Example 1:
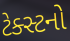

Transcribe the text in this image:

ટેક્સ્ટનો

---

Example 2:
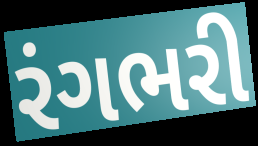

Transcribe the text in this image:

રંગભરી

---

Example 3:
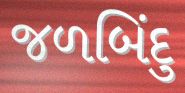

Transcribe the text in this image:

જળબિંદુ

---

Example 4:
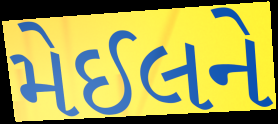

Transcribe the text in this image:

મેઈલને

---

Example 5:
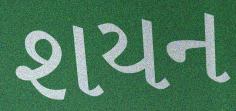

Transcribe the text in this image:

શયન